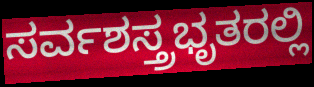
ಸರ್ವಶಸ್ತ್ರಭೃತರಲ್ಲಿ